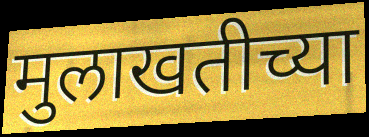
मुलाखतीच्या